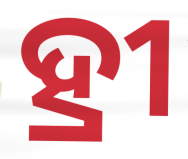
ହ୍ରୀ